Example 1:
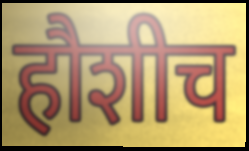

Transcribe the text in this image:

हौशीच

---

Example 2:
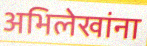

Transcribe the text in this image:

अभिलेखांना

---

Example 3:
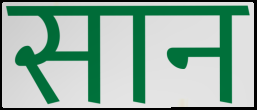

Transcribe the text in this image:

सान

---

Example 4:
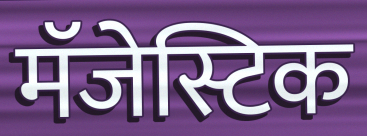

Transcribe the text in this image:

मॅजेस्टिक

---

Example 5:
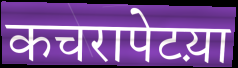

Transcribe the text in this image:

कचरापेटय़ा